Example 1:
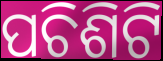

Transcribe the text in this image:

ପଚିଶିଟି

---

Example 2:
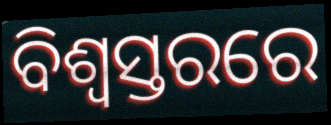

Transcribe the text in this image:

ବିଶ୍ୱସ୍ତରରେ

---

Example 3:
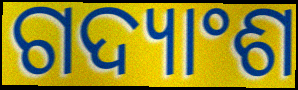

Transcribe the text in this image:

ଗଦ୍ୟାଂଶ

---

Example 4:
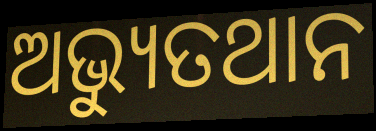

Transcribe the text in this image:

ଅଭ୍ୟୁତଥାନ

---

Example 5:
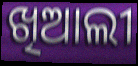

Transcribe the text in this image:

ଖିଆଲୀ